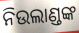
ନିଉଲାଣ୍ଡଙ୍କ